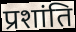
प्रशांति